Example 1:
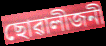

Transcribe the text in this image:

ছোৱালীজনী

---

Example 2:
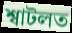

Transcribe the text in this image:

শ্বাটলত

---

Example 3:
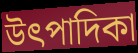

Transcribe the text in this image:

উৎপাদিকা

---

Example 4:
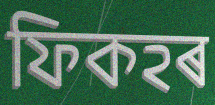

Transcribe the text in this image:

ফিকহৰ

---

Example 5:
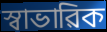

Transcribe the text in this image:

স্বাভাৱিক